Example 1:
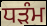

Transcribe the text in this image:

ਧੜੰਮ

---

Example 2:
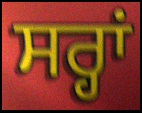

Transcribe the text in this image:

ਸਰ੍ਹਾਂ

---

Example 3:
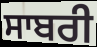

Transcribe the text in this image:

ਸਾਬਰੀ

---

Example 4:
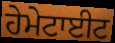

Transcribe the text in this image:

ਹੇਮੇਟਾਈਟ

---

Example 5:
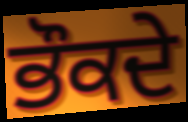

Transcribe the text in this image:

ਭੌਕਦੇ